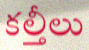
కల్తీలు